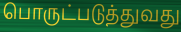
பொருட்படுத்துவது